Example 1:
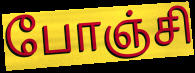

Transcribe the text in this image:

போஞ்சி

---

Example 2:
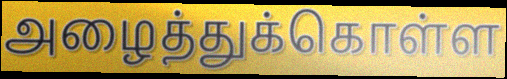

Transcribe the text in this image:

அழைத்துக்கொள்ள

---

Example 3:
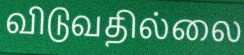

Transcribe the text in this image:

விடுவதில்லை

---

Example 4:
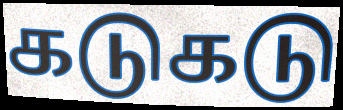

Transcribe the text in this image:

கடுகடு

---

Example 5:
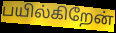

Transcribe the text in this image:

பயில்கிறேன்